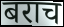
बराच